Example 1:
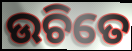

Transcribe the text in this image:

ଉଚିତେ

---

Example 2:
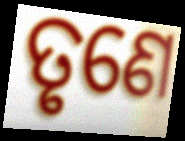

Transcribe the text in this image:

ତୃଣେ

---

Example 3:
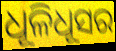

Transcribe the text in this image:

ଧୂଳିଧୂସର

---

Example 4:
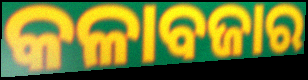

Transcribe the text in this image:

କଳାବଜାର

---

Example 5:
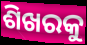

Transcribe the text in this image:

ଶିଖରକୁ